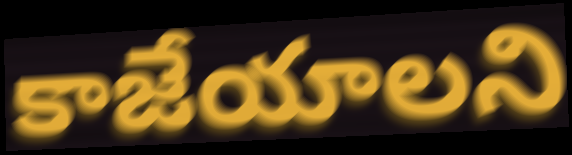
కాజేయాలని